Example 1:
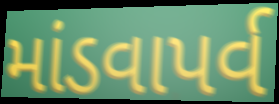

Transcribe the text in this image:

માંડવાપર્વ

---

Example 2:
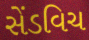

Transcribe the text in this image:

સેંડવિચ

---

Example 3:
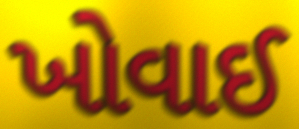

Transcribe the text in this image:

ખોવાઈ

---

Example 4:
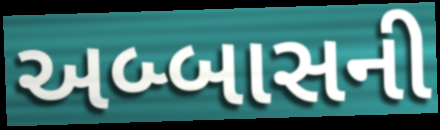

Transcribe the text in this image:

અબ્બાસની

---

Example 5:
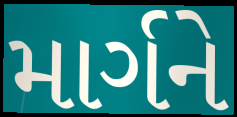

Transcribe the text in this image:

માર્ગને